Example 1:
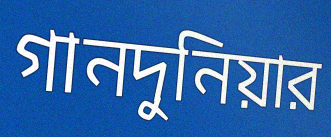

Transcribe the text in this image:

গানদুনিয়ার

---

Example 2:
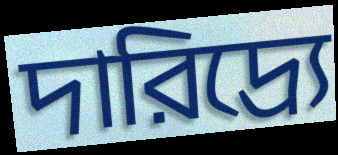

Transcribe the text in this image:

দারিদ্র্যে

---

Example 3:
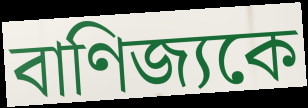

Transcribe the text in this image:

বাণিজ্যকে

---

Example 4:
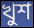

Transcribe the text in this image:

খুশ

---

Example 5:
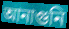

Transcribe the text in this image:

আনাগুনি